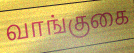
வாங்குகை